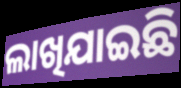
ଲାଖିଯାଇଛି